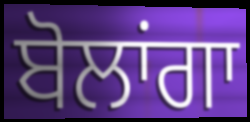
ਬੋਲਾਂਗਾ